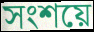
সংশয়ে